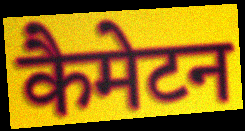
कैमेटन